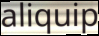
aliquip